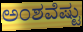
ಅಂಶವೆಷ್ಟು